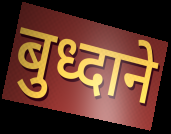
बुध्दाने